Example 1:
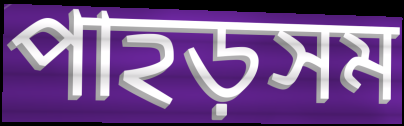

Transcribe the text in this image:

পাহড়সম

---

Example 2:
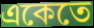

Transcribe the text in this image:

একেতে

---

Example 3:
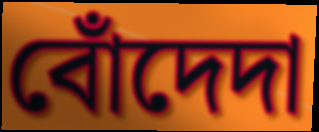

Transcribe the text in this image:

বোঁদেদা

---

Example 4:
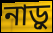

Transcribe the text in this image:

নাড়ু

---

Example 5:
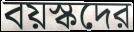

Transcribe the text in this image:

বয়স্কদের